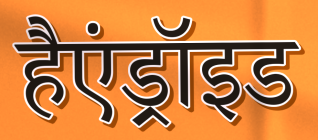
हैएंड्रॉइड